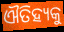
ଐତିହ୍ୟକୁ